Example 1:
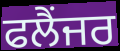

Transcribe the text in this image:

ਫਲੈਂਜਰ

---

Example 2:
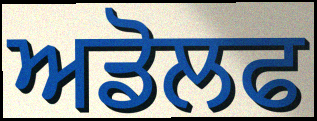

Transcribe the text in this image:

ਅਡੋਲਫ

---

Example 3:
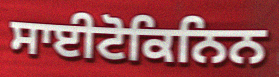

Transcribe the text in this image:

ਸਾਈਟੋਕਿਨਿਨ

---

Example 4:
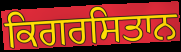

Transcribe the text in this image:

ਕਿਗਰਸਿਤਾਨ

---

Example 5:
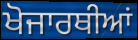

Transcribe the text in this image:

ਖੋਜਾਰਥੀਆਂ